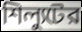
শিল্যুটের